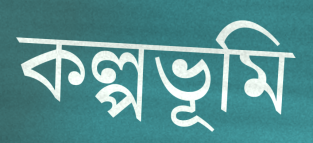
কল্পভূমি